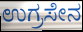
ಉಗ್ರಸೇನ